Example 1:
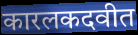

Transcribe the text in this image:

कारलकदवीत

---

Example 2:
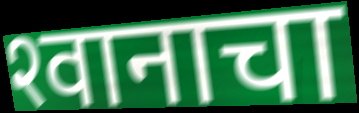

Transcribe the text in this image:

श्वानाचा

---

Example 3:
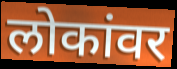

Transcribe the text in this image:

लोकांवर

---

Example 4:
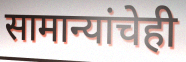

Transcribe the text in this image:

सामान्यांचेही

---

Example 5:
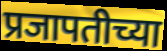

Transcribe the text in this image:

प्रजापतीच्या